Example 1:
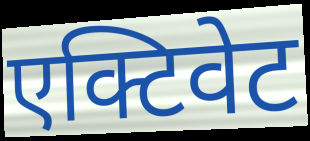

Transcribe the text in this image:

एक्टिवेट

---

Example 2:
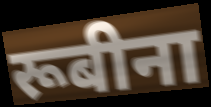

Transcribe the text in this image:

रूबीना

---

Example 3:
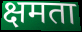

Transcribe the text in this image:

क्षमता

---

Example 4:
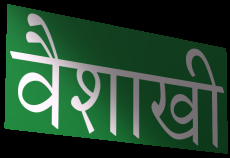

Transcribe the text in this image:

वैशाखी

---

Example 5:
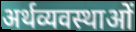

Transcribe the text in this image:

अर्थव्यवस्थाओं